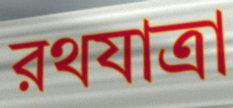
রথযাত্রা